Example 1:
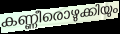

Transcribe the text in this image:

കണ്ണീരൊഴുക്കിയും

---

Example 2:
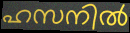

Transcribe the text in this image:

ഹസനിൽ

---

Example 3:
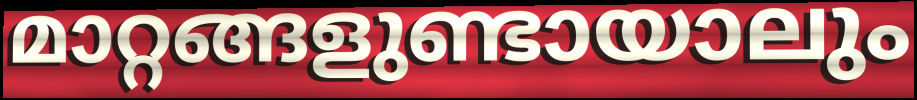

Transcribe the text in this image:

മാറ്റങ്ങളുണ്ടായാലും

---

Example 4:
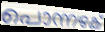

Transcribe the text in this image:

പൊന്നഴക്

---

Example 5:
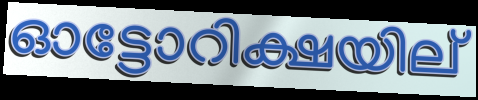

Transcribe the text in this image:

ഓട്ടോറിക്ഷയില്